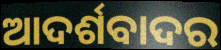
ଆଦର୍ଶବାଦର